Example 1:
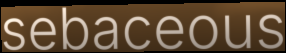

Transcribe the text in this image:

sebaceous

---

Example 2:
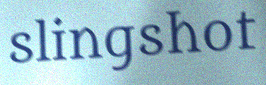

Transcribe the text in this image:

slingshot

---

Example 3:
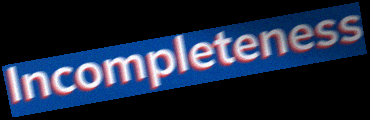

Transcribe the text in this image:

Incompleteness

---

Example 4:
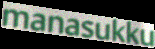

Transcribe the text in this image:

manasukku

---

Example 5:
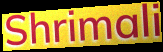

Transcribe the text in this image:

Shrimali